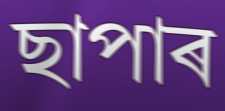
ছাপাৰ